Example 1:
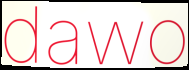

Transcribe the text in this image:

dawo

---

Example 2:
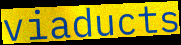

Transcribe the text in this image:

viaducts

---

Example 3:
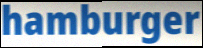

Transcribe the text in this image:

hamburger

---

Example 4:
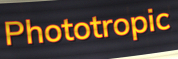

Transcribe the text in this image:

Phototropic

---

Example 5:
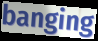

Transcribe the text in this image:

banging